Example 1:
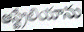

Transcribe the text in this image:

ఆస్ట్రేలియాను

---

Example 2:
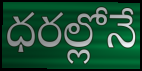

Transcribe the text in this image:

ధరల్లోనే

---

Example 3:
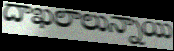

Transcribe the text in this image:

దాఖలాలున్నాయి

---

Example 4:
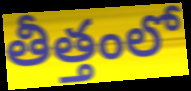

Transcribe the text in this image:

తీత్తంలో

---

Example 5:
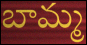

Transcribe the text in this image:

బామ్మ